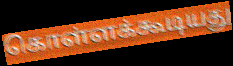
கொள்ளக்கூடியது